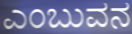
ಎಂಬುವನ